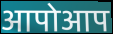
आपोआप